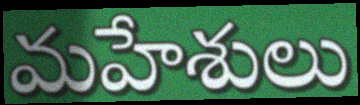
మహేశులు